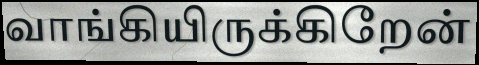
வாங்கியிருக்கிறேன்